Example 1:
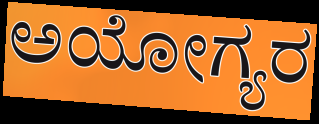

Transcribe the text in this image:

ಅಯೋಗ್ಯರ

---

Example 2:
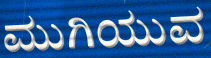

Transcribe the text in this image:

ಮುಗಿಯುವ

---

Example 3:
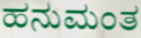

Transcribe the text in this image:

ಹನುಮಂತ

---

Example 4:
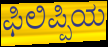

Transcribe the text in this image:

ಫಿಲಿಪ್ಪಿಯ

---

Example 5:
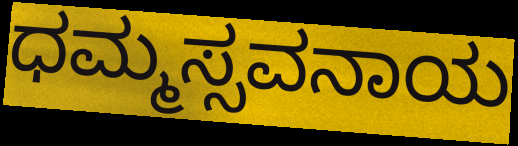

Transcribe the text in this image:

ಧಮ್ಮಸ್ಸವನಾಯ